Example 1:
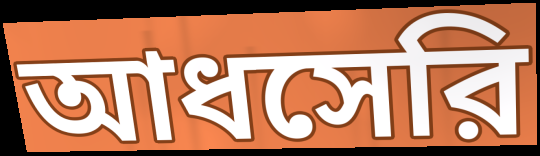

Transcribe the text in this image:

আধসেরি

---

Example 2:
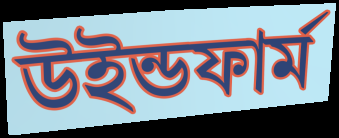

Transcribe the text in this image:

উইন্ডফার্ম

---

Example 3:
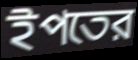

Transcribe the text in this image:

ইপতের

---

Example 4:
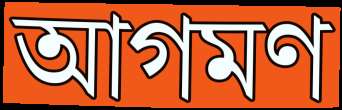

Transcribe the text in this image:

আগমণ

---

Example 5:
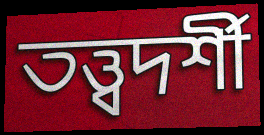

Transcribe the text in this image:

তত্ত্বদর্শী